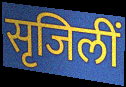
सृजिलीं